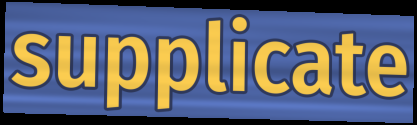
supplicate